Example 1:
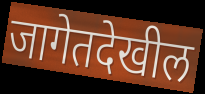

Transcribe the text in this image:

जागेतदेखील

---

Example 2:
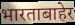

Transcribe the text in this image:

भारताबाहेर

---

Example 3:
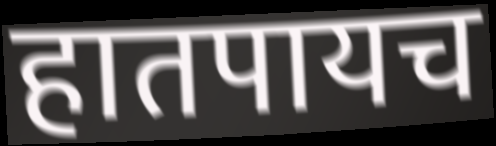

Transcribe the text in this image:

हातपायच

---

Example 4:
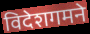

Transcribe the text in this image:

विदेशगमने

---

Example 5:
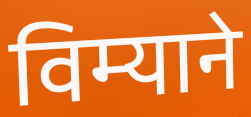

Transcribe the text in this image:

विम्याने